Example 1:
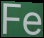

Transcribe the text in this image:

Fe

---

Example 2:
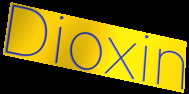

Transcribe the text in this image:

Dioxin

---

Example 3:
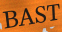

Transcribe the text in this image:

BAST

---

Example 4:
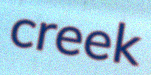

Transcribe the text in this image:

creek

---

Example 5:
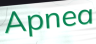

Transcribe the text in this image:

Apnea